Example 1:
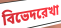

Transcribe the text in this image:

বিভেদরেখা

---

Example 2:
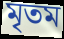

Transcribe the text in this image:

মৃতম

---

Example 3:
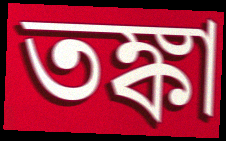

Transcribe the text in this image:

তঙ্কা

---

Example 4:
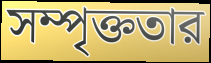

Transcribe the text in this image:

সম্পৃক্ততার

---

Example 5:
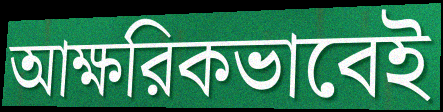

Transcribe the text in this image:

আক্ষরিকভাবেই